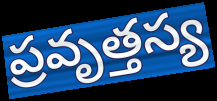
ప్రవృత్తస్య